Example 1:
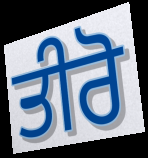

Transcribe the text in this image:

ਤੀਰੋ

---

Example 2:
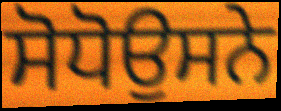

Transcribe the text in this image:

ਸੋਧੋਉਸਨੇ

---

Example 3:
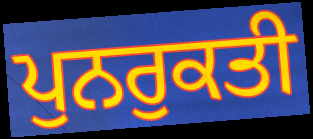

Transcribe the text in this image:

ਪੁਨਰੁਕਤੀ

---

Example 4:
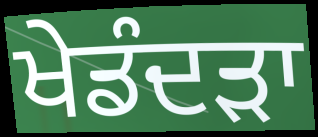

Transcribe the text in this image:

ਖੇਡੰਦੜਾ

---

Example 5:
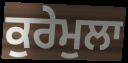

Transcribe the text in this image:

ਕੁਰੇਮੁਲਾ